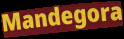
Mandegora